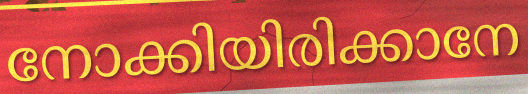
നോക്കിയിരിക്കാനേ